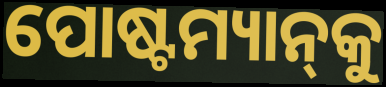
ପୋଷ୍ଟମ୍ୟାନ୍‌କୁ